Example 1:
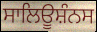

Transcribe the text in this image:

ਸਾਲਿਊਸ਼ੰਨਸ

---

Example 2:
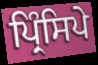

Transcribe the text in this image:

ਪ੍ਰਿੰਸਿਪੇ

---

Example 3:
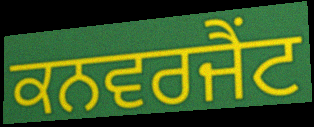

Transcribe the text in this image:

ਕਨਵਰਜੈਂਟ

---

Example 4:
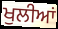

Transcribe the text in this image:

ਖੁਲੀਆਂ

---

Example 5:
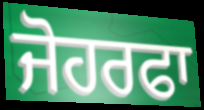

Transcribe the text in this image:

ਜੋਹਰਫਾ